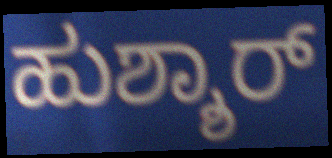
ಹುಶ್ಶಾರ್